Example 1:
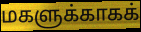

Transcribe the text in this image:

மகளுக்காகக்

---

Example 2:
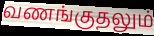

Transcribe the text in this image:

வணங்குதலும்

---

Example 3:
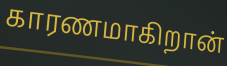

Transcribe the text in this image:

காரணமாகிறான்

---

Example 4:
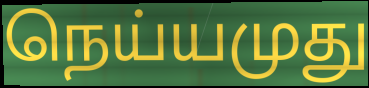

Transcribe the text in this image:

நெய்யமுது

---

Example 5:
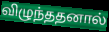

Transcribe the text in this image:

விழுந்ததனால்